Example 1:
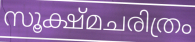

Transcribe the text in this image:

സൂക്ഷ്മചരിത്രം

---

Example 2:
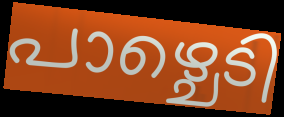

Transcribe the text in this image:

പാഴ്ചെടി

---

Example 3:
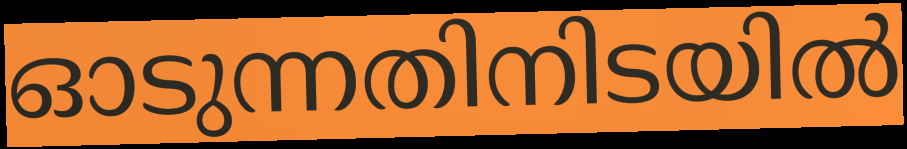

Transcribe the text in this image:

ഓടുന്നതിനിടയിൽ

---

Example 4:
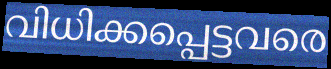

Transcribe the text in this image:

വിധിക്കപ്പെട്ടവരെ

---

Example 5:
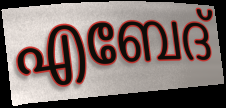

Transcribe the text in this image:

എബേദ്